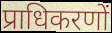
प्राधिकरणों